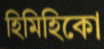
হিমিহিকো